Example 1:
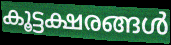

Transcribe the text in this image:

കൂട്ടക്ഷരങ്ങൾ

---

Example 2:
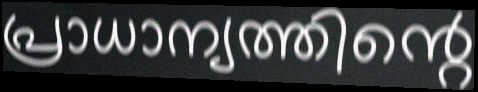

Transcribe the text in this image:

പ്രാധാന്യത്തിന്റെ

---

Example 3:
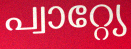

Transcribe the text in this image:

പ്വാറ്റ്യേ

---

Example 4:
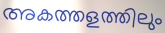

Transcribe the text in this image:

അകത്തളത്തിലും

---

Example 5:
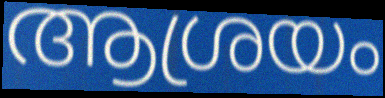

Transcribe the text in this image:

ആശ്രയം